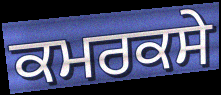
ਕਮਰਕਸੇ